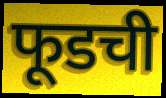
फूडची